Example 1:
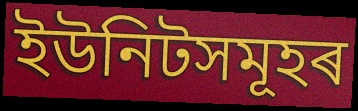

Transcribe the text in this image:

ইউনিটসমূহৰ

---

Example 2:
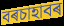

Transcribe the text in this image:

বৰচাহাবৰ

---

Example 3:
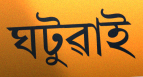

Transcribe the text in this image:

ঘটুৱাই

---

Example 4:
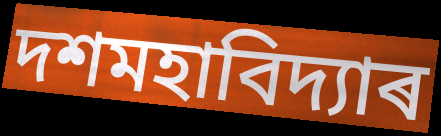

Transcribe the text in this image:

দশমহাবিদ্যাৰ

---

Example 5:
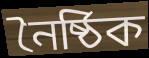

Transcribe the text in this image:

নৈষ্ঠিক